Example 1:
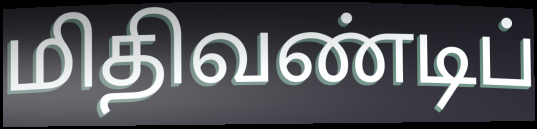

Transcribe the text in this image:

மிதிவண்டிப்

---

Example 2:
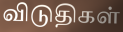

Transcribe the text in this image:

விடுதிகள்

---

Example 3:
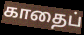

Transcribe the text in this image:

காதைப்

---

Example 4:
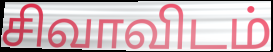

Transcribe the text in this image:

சிவாவிடம்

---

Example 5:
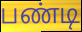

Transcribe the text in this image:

பண்டி